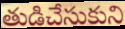
తుడిచేసుకుని